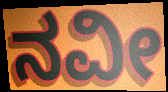
ನವೀ